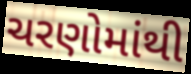
ચરણોમાંથી